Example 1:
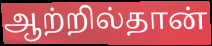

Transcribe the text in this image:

ஆற்றில்தான்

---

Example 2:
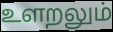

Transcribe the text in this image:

உளறலும்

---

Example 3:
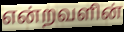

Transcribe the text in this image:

என்றவளின்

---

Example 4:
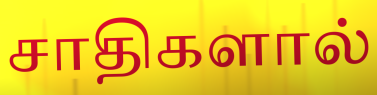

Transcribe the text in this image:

சாதிகளால்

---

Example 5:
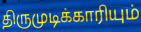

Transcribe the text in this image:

திருமுடிக்காரியும்